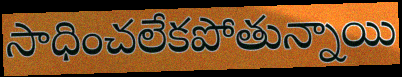
సాధించలేకపోతున్నాయి